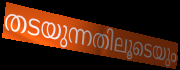
തടയുന്നതിലൂടെയും